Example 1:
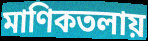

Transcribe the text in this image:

মাণিকতলায়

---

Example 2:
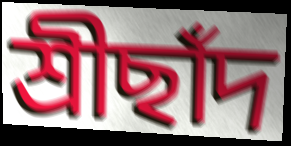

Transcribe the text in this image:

শ্রীছাঁদ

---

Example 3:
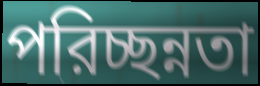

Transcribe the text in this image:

পরিচ্ছন্নতা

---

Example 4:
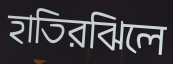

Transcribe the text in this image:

হাতিরঝিলে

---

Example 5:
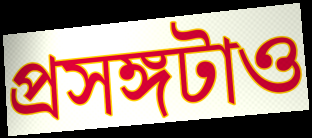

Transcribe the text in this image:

প্রসঙ্গটাও